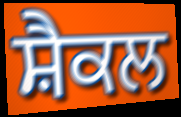
ਸ਼ੈਕਲ